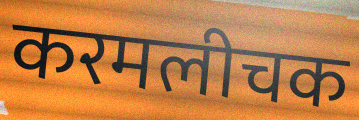
करमलीचक